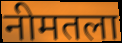
नीमतला